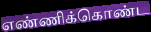
எண்ணிக்கொண்ட